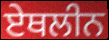
ਏਥਲੀਨ